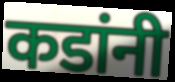
कडांनी